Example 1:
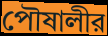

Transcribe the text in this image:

পৌষালীর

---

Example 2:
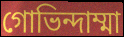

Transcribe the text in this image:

গোভিন্দাম্মা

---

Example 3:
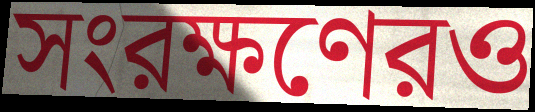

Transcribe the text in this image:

সংরক্ষণেরও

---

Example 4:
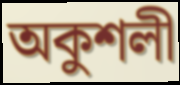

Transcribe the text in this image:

অকুশলী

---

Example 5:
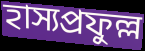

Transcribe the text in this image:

হাস্যপ্রফুল্ল